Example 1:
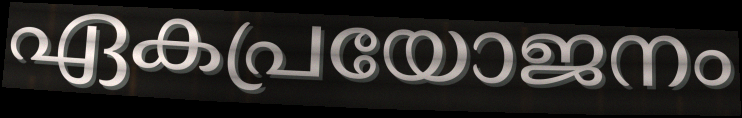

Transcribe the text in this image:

ഏകപ്രയോജനം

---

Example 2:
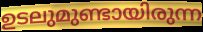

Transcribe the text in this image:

ഉടലുമുണ്ടായിരുന്ന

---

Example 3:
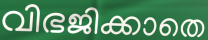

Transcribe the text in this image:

വിഭജിക്കാതെ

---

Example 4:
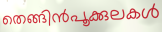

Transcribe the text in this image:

തെങ്ങിൻപൂക്കുലകൾ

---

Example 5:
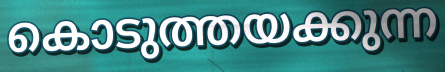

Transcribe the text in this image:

കൊടുത്തയക്കുന്ന